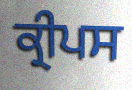
ਕ੍ਰੀਪਸ